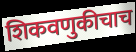
शिकवणुकीचाच